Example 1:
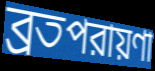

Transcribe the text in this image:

ব্রতপরায়ণা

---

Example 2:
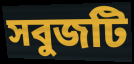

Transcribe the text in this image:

সবুজটি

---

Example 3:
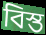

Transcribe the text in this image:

বিস্ত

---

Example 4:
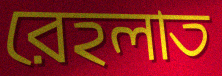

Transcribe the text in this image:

রেহলাত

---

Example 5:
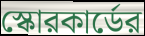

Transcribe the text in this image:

স্কোরকার্ডের